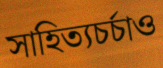
সাহিত্যচর্চাও